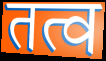
तत्व